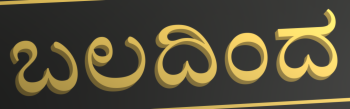
ಬಲದಿಂದ